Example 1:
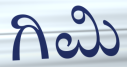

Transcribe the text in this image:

ಗಿಮಿ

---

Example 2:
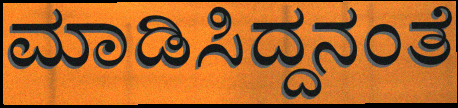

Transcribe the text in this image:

ಮಾಡಿಸಿದ್ದನಂತೆ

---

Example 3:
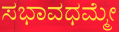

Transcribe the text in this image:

ಸಭಾವಧಮ್ಮೇ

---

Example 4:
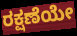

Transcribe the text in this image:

ರಕ್ಷಣೆಯೇ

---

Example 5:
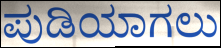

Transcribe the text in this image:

ಪುಡಿಯಾಗಲು